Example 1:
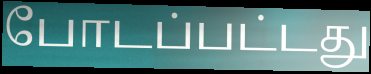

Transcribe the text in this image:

போடப்பட்டது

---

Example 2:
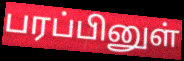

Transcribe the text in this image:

பரப்பினுள்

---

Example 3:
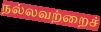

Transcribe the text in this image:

நல்லவற்றைச்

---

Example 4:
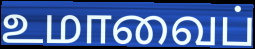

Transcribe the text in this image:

உமாவைப்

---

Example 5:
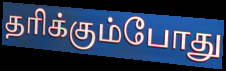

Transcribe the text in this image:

தரிக்கும்போது